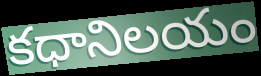
కధానిలయం